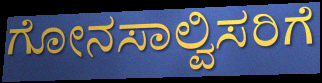
ಗೋನಸಾಲ್ವಿಸರಿಗೆ